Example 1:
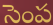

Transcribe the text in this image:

సెంప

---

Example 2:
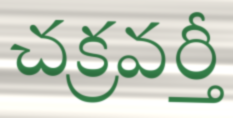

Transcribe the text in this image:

చక్రవర్తీ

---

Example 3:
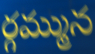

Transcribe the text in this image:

ర్గమ్మున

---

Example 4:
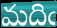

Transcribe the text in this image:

మదిఁ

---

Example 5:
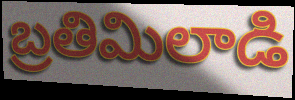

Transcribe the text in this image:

బ్రతిమిలాడి